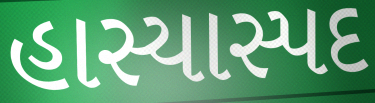
હાસ્યાસ્પદ